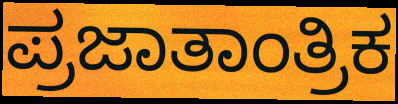
ಪ್ರಜಾತಾಂತ್ರಿಕ